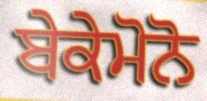
ਬੇਕੇਮੋਨੋ